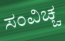
ಸಂವಿಚ್ಚ